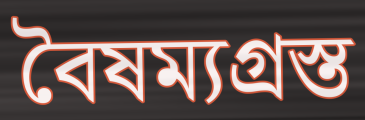
বৈষম্যগ্রস্ত